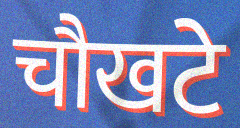
चौखटे